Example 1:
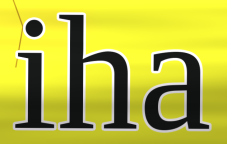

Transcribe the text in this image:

iha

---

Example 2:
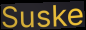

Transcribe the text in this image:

Suske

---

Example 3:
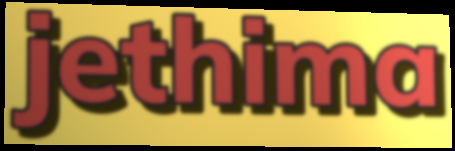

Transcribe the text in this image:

jethima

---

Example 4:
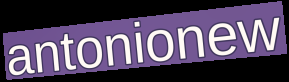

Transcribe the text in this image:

antonionew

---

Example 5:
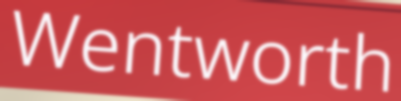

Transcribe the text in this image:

Wentworth